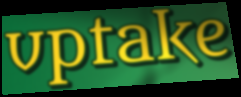
uptake